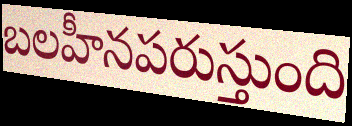
బలహీనపరుస్తుంది